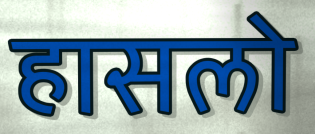
हासलो